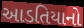
આડતિયાનો